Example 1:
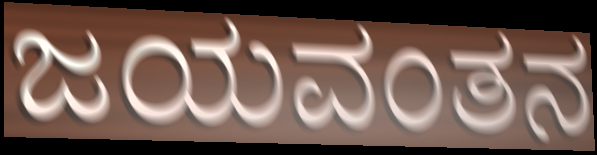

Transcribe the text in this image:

ಜಯವಂತನ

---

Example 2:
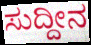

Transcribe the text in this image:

ಸುದ್ದೀನ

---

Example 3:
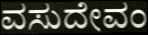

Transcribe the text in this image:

ವಸುದೇವಂ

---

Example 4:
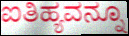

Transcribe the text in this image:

ಐತಿಹ್ಯವನ್ನೂ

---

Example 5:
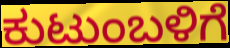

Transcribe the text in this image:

ಕುಟುಂಬಳಿಗೆ